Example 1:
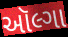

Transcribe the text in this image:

ઑલ્ગા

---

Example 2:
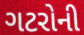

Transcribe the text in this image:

ગટરોની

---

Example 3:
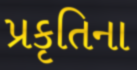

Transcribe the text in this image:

પ્રકૃતિના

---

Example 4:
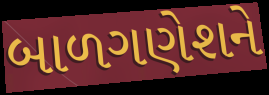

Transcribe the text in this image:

બાળગણેશને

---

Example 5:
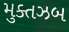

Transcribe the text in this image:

મુક્તઝબ